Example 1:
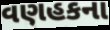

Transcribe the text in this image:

વણહકના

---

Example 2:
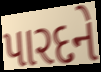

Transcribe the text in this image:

પારદને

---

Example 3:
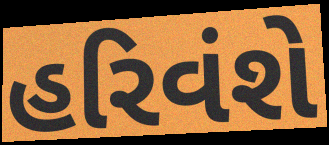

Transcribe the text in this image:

હરિવંશે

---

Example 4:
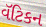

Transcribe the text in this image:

વૅટિકન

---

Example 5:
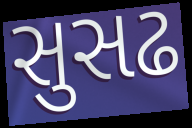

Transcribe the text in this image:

સુસઢ